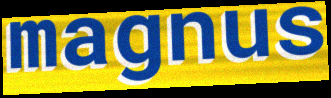
magnus